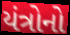
યંત્રોનો